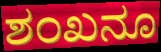
ಶಂಖನೂ